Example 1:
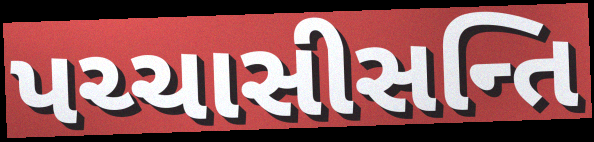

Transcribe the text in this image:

પચ્ચાસીસન્તિ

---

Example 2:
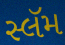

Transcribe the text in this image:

સ્લૅમ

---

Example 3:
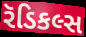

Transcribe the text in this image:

રૅડિકલ્સ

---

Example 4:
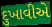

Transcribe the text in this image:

દુખાવીએ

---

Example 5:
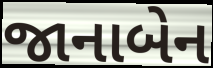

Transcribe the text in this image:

જાનાબેન